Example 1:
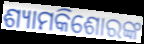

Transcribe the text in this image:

ଶ୍ୟାମକିଶୋରଙ୍କ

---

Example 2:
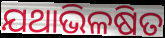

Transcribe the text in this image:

ଯଥାଭିଳଷିତ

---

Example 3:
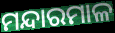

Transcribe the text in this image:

ମନ୍ଦାରମାଳ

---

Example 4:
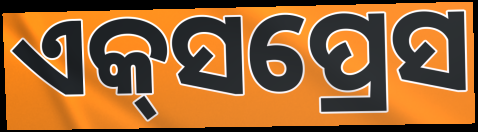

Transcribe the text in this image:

ଏକ୍‍ସପ୍ରେସ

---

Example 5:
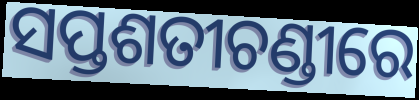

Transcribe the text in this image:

ସପ୍ତଶତୀଚଣ୍ଡୀରେ